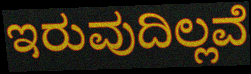
ಇರುವುದಿಲ್ಲವೆ